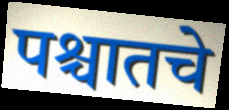
पश्चातचे